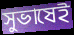
সুভাষেই